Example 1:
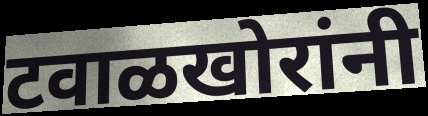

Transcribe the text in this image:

टवाळखोरांनी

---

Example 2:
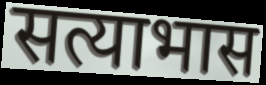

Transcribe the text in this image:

सत्याभास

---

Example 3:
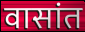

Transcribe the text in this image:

वासांत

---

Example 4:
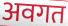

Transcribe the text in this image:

अवगत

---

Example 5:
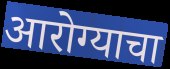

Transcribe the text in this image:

आरोग्याचा